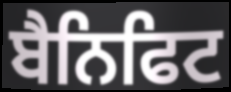
ਬੈਨਿਫਿਟ